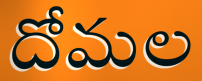
దోమల